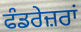
ਫੰਡਰੇਜ਼ਰਾਂ